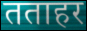
तताहर